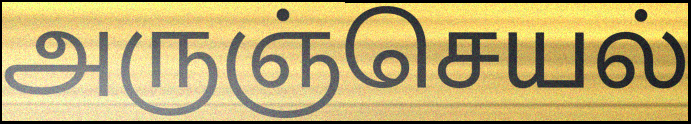
அருஞ்செயல்